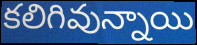
కలిగివున్నాయి